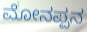
ಮೋನಪ್ಪನ